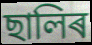
ছালিৰ